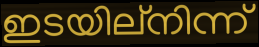
ഇടയില്നിന്ന്